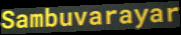
Sambuvarayar